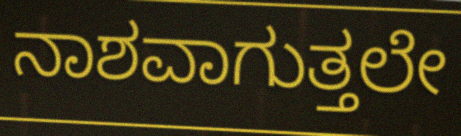
ನಾಶವಾಗುತ್ತಲೇ